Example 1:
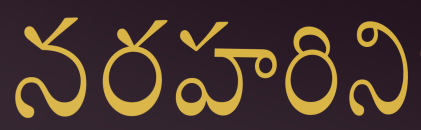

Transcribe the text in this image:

నరహరిని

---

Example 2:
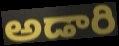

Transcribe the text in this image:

అడారి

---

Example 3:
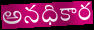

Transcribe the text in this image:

అనధికార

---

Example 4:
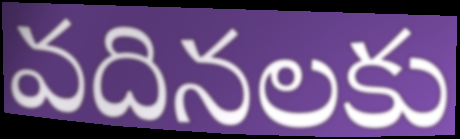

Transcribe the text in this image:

వదినలకు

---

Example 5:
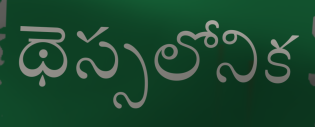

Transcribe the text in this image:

థెస్సలోనిక